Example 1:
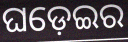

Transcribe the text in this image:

ଘଡ଼େଇର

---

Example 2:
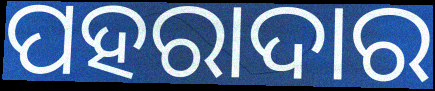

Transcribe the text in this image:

ପହରାଦାର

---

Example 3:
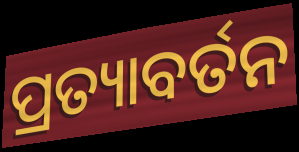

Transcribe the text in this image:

ପ୍ରତ୍ୟାବର୍ତନ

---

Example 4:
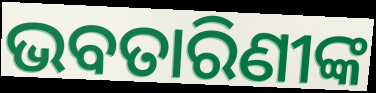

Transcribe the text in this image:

ଭବତାରିଣୀଙ୍କ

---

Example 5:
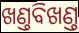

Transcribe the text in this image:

ଖଣ୍ତବିଖଣ୍ତ